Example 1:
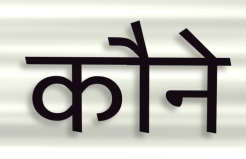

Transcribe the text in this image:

कौने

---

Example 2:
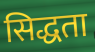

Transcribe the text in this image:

सिद्धता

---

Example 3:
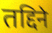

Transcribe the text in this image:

तद्दिने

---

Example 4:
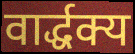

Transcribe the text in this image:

वार्द्धक्य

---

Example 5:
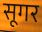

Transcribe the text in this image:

सूगर